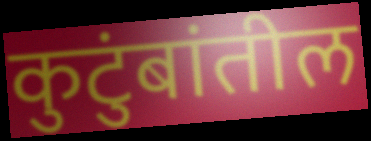
कुटुंबांतील